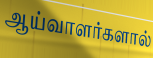
ஆய்வாளர்களால்